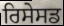
ਰਿਸੇਸਡ